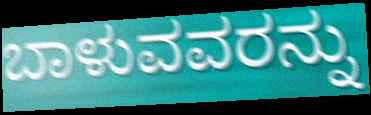
ಬಾಳುವವರನ್ನು